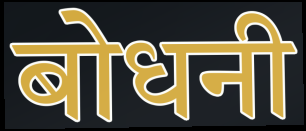
बोधनी